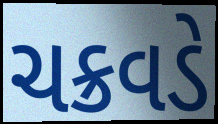
ચક્રવડે